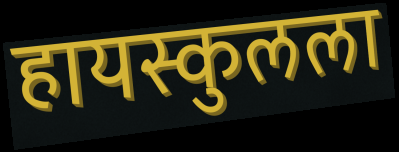
हायस्कुलला